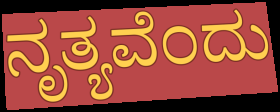
ನೃತ್ಯವೆಂದು